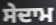
ਸੇਦਾਮ